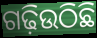
ଗଢ଼ିଉଠିଛି